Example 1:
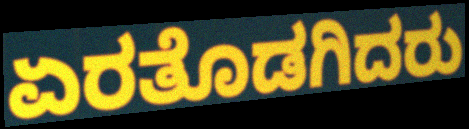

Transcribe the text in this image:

ಏರತೊಡಗಿದರು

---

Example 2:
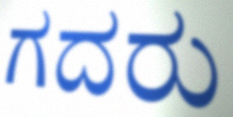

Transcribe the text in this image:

ಗದರು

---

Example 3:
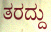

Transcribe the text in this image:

ತರದ್ದು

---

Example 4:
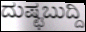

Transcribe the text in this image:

ದುಷ್ಟಬುದ್ದಿ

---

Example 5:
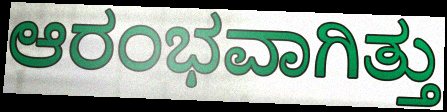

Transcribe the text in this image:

ಆರಂಭವಾಗಿತ್ತು